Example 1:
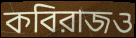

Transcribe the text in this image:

কবিরাজও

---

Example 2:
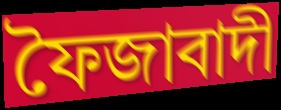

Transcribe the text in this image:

ফৈজাবাদী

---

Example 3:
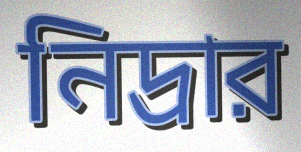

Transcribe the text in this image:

নিদ্রার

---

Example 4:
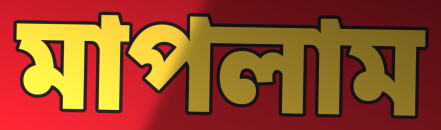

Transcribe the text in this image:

মাপলাম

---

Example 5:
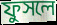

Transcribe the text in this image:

ফুসলে